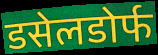
डसेलडोर्फ